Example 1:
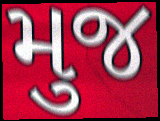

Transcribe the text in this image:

મુજ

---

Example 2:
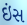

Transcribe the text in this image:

ઇંસ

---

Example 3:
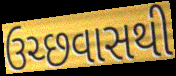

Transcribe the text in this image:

ઉચ્છવાસથી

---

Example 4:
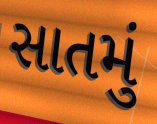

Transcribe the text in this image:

સાતમું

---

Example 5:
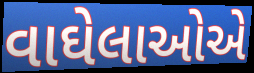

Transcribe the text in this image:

વાઘેલાઓએ